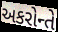
અકરોન્તે